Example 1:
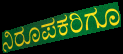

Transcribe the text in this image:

ನಿರೂಪಕರಿಗೂ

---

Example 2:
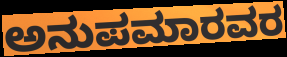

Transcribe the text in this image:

ಅನುಪಮಾರವರ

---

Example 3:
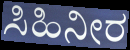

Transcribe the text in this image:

ಸಿಹಿನೀರ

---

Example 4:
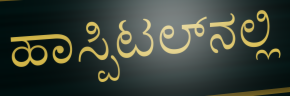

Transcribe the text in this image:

ಹಾಸ್ಪಿಟಲ್‌ನಲ್ಲಿ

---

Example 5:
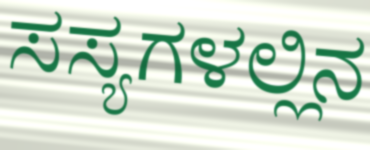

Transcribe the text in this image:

ಸಸ್ಯಗಳಲ್ಲಿನ